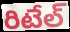
రిటేల్